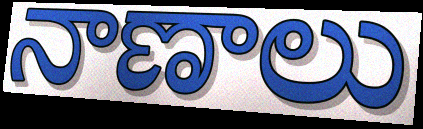
నాణాలు